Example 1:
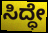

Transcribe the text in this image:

ಸಿದ್ಧೇ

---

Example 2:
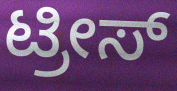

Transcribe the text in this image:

ಟ್ರೀಸ್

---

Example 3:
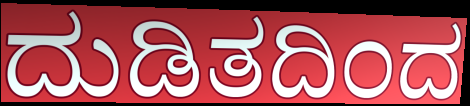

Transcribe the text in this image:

ದುಡಿತದಿಂದ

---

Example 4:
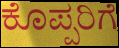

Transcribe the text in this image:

ಕೊಪ್ಪರಿಗೆ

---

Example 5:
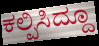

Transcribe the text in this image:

ಕಲ್ಪಿಸಿದ್ದೂ